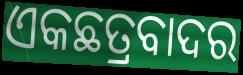
ଏକଛତ୍ରବାଦର